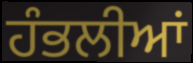
ਹੰਭਲੀਆਂ